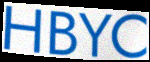
HBYC